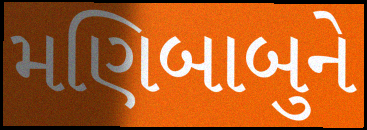
મણિબાબુને